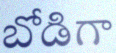
బోడిగా